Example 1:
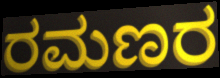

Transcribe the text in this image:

ರಮಣರ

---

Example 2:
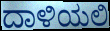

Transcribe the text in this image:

ದಾಳಿಯಲಿ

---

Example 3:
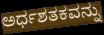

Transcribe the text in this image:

ಅರ್ಧಶತಕವನ್ನು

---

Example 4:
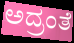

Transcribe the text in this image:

ಅದ್ರಂತೆ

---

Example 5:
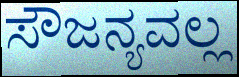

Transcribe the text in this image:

ಸೌಜನ್ಯವಲ್ಲ